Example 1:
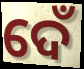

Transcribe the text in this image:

ଦେଁ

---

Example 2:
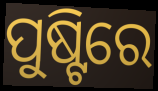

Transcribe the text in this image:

ପୁଷ୍ଟିରେ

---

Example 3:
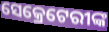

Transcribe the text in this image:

ସେକ୍ରେଟେରୀଙ୍କ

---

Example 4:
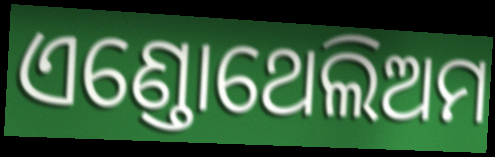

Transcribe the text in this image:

ଏଣ୍ଡୋଥେଲିଅମ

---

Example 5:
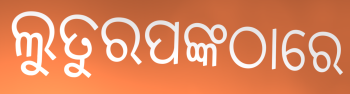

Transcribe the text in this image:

ଲୁତୁରପଙ୍କଠାରେ